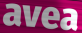
avea